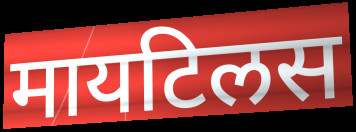
मायटिलस